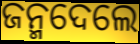
ଜନ୍ମଦେଲେ